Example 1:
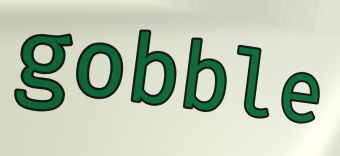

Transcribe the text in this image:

gobble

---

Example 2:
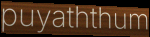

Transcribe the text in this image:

puyaththum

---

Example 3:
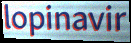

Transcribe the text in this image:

lopinavir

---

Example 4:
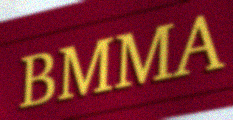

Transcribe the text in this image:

BMMA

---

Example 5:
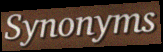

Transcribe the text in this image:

Synonyms